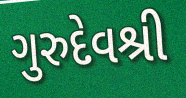
ગુરુદેવશ્રી